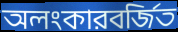
অলংকারবর্জিত